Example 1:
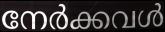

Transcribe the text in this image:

നേർക്കവൾ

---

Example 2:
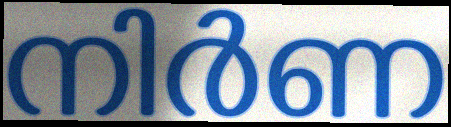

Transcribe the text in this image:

നിർണ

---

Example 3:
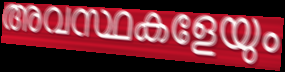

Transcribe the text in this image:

അവസ്ഥകളേയും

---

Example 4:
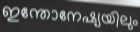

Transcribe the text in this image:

ഇന്തോനേഷ്യയിലും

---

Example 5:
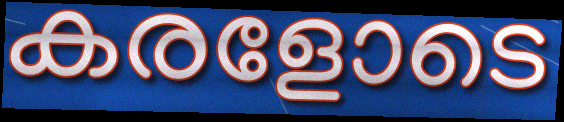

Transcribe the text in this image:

കരളോടെ